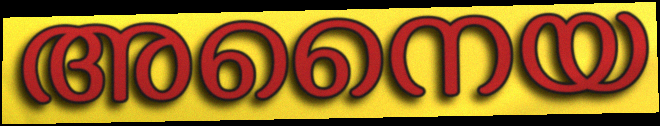
അനൈയ